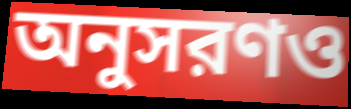
অনুসরণও